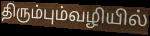
திரும்பும்வழியில்